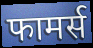
फामर्स